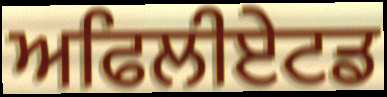
ਅਫਿਲੀਏਟਡ